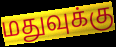
மதுவுக்கு